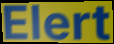
Elert